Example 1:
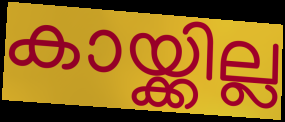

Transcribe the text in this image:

കായ്ക്കില്ല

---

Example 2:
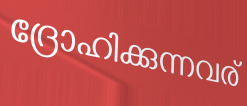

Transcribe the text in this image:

ദ്രോഹിക്കുന്നവര്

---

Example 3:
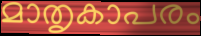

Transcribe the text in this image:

മാതൃകാപരം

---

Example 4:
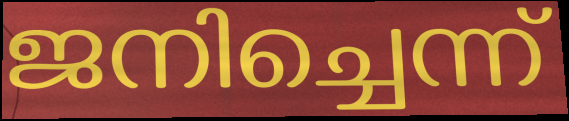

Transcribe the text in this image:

ജനിച്ചെന്ന്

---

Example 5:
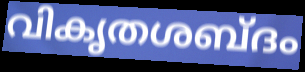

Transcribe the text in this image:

വികൃതശബ്ദം